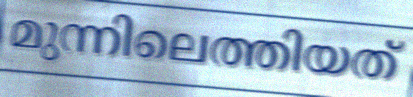
മുന്നിലെത്തിയത്